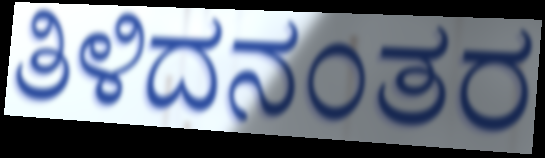
ತಿಳಿದನಂತರ